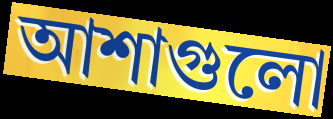
আশাগুলো